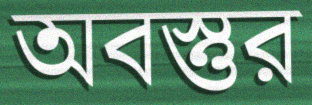
অবস্তুর